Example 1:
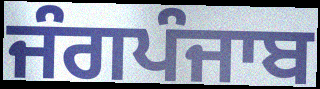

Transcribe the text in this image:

ਜੰਗਪੰਜਾਬ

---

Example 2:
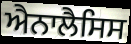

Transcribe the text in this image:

ਐਨਾਲੈਸਿਸ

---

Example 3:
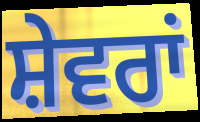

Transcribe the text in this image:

ਸ਼ੇਵਰਾਂ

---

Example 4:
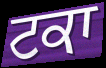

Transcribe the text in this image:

ਟਕਾ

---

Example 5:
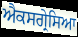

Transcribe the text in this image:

ਐਕਸਗ੍ਰੇਸਿਆ